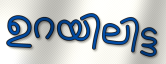
ഉറയിലിട്ട